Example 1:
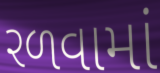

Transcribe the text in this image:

રળવામાં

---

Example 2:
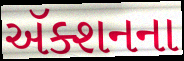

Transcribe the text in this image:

ઍક્શનના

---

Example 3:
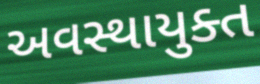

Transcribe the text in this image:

અવસ્થાયુક્ત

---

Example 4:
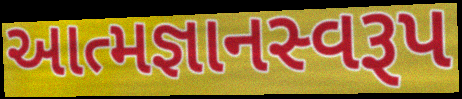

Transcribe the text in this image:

આત્મજ્ઞાનસ્વરૂપ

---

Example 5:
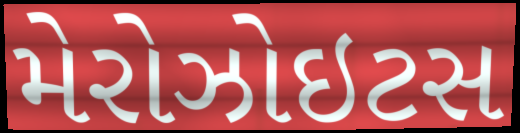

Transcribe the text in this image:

મેરોઝોઇટસ